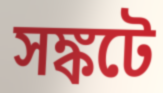
সঙ্কটে